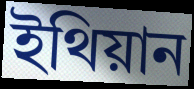
ইথিয়ান